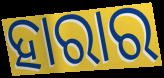
ହାରାର